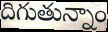
దిగుతున్నాం